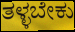
ತಳ್ಳಬೇಕು